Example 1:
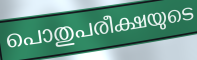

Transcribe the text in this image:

പൊതുപരീക്ഷയുടെ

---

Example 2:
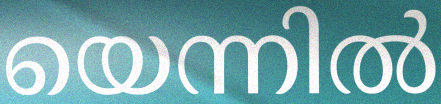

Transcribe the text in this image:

യെന്നിൽ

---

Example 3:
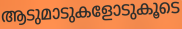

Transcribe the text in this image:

ആടുമാടുകളോടുകൂടെ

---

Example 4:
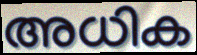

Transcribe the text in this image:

അധിക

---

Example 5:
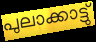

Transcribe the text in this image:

പുലാക്കാട്ടു്